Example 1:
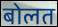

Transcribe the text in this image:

बोलत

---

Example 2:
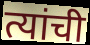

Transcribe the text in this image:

त्यांची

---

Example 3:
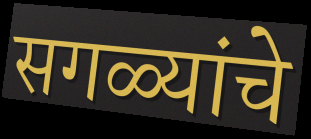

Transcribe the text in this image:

सगळ्यांचे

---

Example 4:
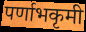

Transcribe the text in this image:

पर्णाभकृमी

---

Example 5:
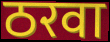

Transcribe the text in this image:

ठरवा